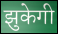
झुकेगी